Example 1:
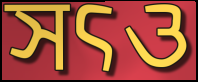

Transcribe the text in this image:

সৎও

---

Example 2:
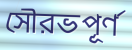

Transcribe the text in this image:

সৌরভপূর্ণ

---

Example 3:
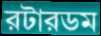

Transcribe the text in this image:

রটারডম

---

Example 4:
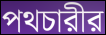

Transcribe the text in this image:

পথচারীর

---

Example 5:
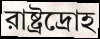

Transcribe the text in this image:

রাষ্ট্রদ্রোহ